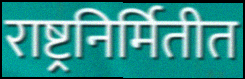
राष्ट्रनिर्मितीत